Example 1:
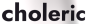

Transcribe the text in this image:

choleric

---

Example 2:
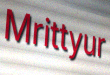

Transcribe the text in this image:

Mrittyur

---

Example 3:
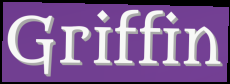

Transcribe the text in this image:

Griffin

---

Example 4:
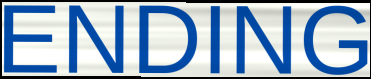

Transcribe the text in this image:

ENDING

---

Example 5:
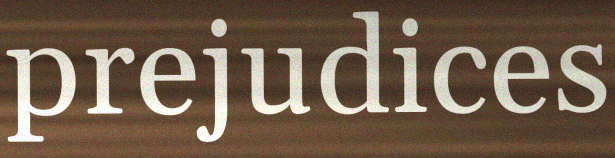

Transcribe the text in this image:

prejudices